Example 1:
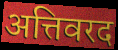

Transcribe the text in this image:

अत्तिवरद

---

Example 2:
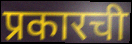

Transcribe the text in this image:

प्रकारची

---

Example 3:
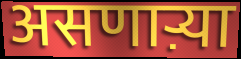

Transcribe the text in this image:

असणाऱ्‍या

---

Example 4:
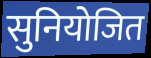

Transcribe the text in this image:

सुनियोजित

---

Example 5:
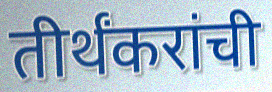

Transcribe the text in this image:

तीर्थंकरांची